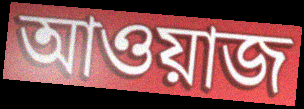
আওয়াজ